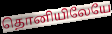
தொனியிலேயே